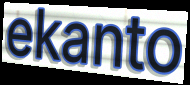
ekanto